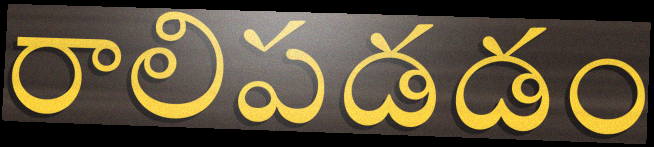
రాలిపడడం